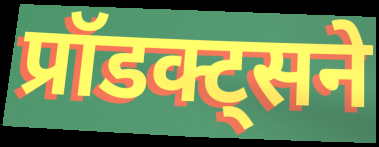
प्रॉडक्ट्सने